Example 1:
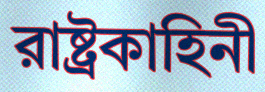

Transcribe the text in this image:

রাষ্ট্রকাহিনী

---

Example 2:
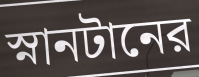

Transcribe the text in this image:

স্নানটানের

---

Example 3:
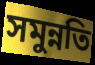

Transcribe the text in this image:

সমুন্নতি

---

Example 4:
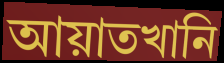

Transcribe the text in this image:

আয়াতখানি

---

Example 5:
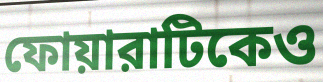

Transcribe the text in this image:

ফোয়ারাটিকেও